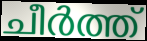
ചീർത്ത്